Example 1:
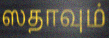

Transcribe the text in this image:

ஸதாவும்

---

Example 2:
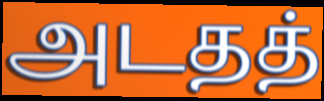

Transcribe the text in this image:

அடதத்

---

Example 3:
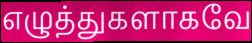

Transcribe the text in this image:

எழுத்துகளாகவே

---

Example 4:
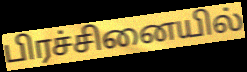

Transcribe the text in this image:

பிரச்சினையில்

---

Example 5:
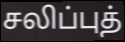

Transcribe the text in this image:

சலிப்புத்